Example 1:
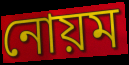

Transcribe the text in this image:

নোয়ম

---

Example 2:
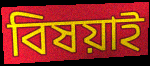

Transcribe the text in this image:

বিষয়াই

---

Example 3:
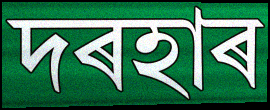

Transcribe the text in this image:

দৰহাৰ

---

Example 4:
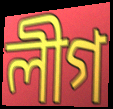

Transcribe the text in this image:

লীগ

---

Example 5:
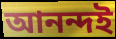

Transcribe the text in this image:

আনন্দই